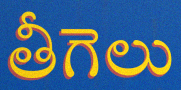
తీగెలు